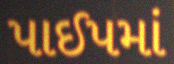
પાઈપમાં